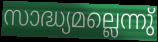
സാദ്ധ്യമല്ലെന്നു്